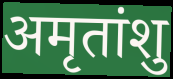
अमृतांशु